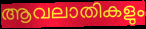
ആവലാതികളും